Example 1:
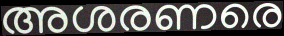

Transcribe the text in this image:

അശരണരെ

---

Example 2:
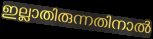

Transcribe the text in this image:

ഇല്ലാതിരുന്നതിനാൽ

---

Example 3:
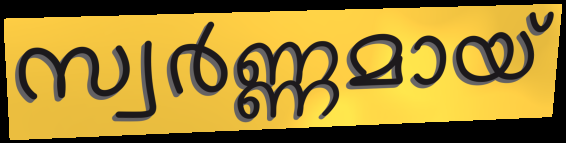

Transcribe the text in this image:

സ്വർണ്ണമായ്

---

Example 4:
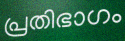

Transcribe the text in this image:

പ്രതിഭാഗം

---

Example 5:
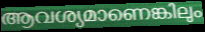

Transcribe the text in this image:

ആവശ്യമാണെങ്കിലും